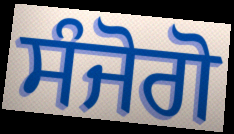
ਸੰਜੋਗੋ